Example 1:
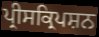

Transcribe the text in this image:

ਪ੍ਰੀਸਕ੍ਰਿਪਸ਼ਨ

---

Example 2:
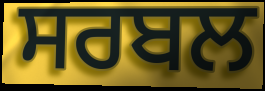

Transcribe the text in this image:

ਸਰਬਲ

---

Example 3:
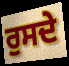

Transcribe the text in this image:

ਰੁਸਦੇ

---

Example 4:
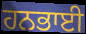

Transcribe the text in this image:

ਹਨਭਾਈ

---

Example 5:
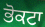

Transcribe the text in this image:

ਭੋਕਟਾ